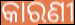
କାରଣୀ